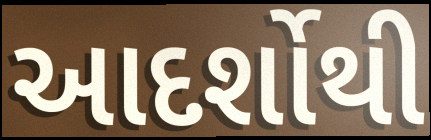
આદર્શોથી